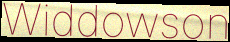
Widdowson